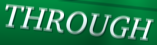
THROUGH